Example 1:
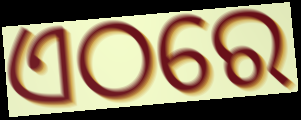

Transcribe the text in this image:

ଏଠରେ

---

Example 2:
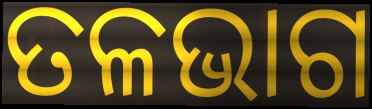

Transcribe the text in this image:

ତଳଭାଗ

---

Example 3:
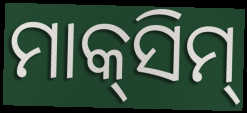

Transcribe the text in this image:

ମାକ୍‍ସିମ୍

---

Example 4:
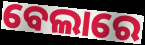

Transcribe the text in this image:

ବେଲାରେ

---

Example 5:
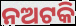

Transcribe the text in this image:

ନଅଟକି